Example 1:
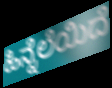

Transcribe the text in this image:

ಹಿನ್ನೆಲೆಯಿದೆ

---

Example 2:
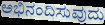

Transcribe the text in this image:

ಅಭಿನಂದಿಸುವುದು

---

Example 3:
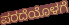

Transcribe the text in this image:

ಪರದೆಯೊಳಗೆ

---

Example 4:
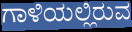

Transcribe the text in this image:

ಗಾಳಿಯಲ್ಲಿರುವ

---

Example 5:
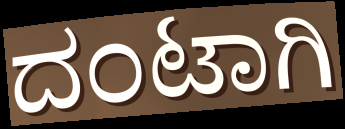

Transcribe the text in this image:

ದಂಟಾಗಿ